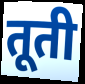
तूती